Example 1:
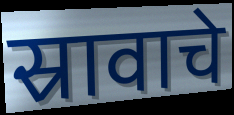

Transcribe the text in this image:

स्रावाचे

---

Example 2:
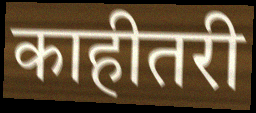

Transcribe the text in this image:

काहीतरी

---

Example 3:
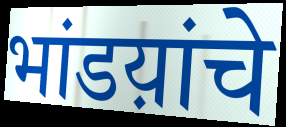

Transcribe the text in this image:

भांडय़ांचे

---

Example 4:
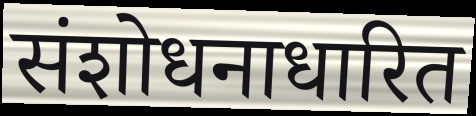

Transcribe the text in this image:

संशोधनाधारित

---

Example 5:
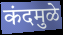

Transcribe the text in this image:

कंदमुळे